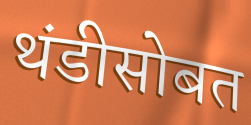
थंडीसोबत